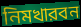
নিমখারবন